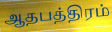
ஆதபத்திரம்